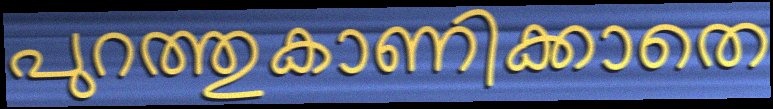
പുറത്തുകാണിക്കാതെ